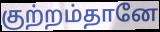
குற்றம்தானே